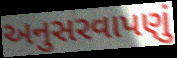
અનુસરવાપણું